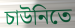
চাউনিতে